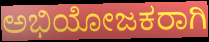
ಅಭಿಯೋಜಕರಾಗಿ